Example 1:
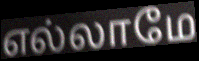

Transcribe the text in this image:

எல்லாமே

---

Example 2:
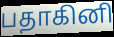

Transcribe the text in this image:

பதாகினி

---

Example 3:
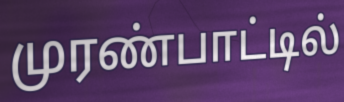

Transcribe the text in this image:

முரண்பாட்டில்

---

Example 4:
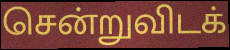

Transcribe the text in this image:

சென்றுவிடக்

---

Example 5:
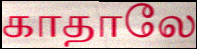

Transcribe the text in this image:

காதாலே